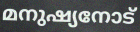
മനുഷ്യനോട്